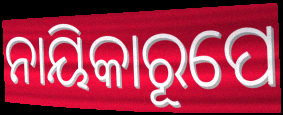
ନାୟିକାରୂପେ